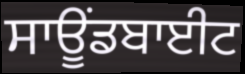
ਸਾਊਂਡਬਾਈਟ